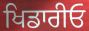
ਖਿਡਾਰੀਓ